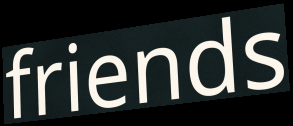
friends